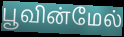
பூவின்மேல்